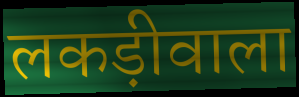
लकड़ीवाला